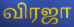
விரஜா